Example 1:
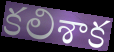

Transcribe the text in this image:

కలిశాక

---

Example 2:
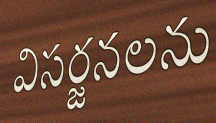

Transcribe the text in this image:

విసర్జనలను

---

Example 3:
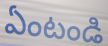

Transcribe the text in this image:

ఏంటండి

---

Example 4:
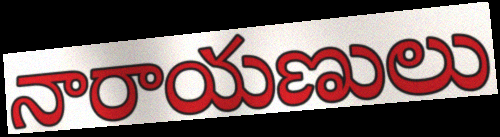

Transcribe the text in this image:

నారాయణులు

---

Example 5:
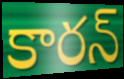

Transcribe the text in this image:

కారన్